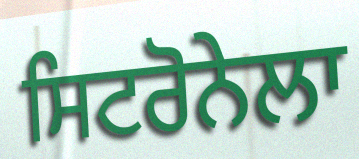
ਸਿਟਰੋਨੇਲਾ